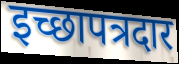
इच्छापत्रदार